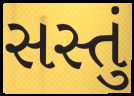
સસ્તું